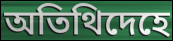
অতিথিদেহে